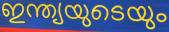
ഇന്ത്യയുടെയും